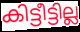
കിട്ടീട്ടില്ല